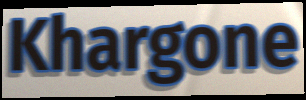
Khargone